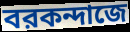
বরকন্দাজে